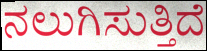
ನಲುಗಿಸುತ್ತಿದೆ